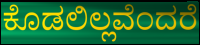
ಕೊಡಲಿಲ್ಲವೆಂದರೆ